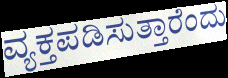
ವ್ಯಕ್ತಪಡಿಸುತ್ತಾರೆಂದು